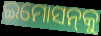
ଇମୋସନ୍‌କୁ